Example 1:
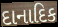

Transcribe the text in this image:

દાનાદિક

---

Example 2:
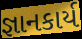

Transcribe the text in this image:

જ્ઞાનકાર્ય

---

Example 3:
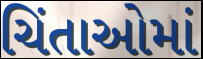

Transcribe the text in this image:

ચિંતાઓમાં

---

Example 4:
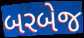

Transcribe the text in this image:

બરબેજ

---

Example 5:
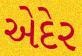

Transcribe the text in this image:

એદેર